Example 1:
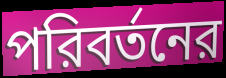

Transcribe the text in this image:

পরিবর্তনের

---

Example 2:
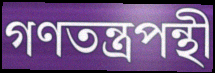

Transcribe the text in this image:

গণতন্ত্রপন্থী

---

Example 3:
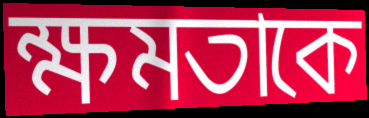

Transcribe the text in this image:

ক্ষমতাকে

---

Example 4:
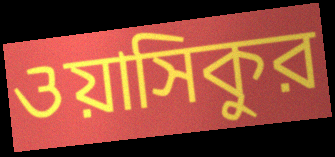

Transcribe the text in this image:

ওয়াসিকুর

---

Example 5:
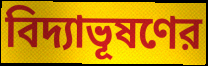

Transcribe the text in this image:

বিদ্যাভূষণের